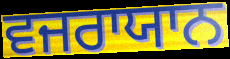
ਵਜਰਾਯਾਨ